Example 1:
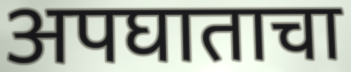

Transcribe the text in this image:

अपघाताचा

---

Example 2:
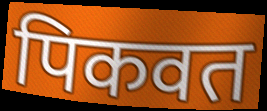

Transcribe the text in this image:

पिकवत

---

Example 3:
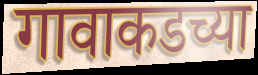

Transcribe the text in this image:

गावाकडच्या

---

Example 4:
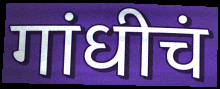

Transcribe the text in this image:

गांधीचं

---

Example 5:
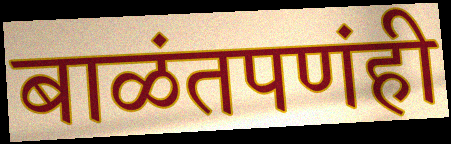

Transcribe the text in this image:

बाळंतपणंही